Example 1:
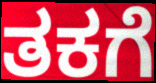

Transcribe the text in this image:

ತಕಗೆ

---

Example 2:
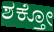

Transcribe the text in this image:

ಶಕ್ತೋ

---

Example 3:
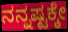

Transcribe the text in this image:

ನನ್ನಷ್ಟಕ್ಕೇ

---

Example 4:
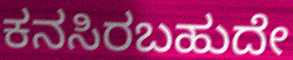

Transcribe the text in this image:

ಕನಸಿರಬಹುದೇ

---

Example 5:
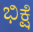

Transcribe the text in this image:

ಭಿಕ್ಷೆ